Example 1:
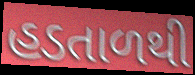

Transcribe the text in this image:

હડતાળથી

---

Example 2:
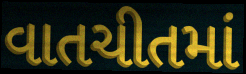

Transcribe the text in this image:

વાતચીતમાં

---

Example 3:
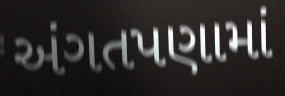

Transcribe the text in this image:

અંગતપણામાં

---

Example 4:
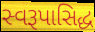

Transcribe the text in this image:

સ્વરૂપાસિદ્ધ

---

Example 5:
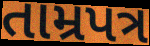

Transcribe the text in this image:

તામ્રપત્ર